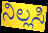
ನಿಲ್ಲಸಿ